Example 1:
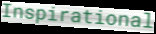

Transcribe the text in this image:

Inspirational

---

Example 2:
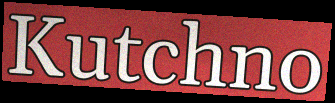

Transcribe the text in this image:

Kutchno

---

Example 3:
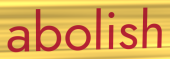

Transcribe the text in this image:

abolish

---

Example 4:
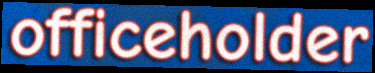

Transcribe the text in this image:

officeholder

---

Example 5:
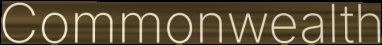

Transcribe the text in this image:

Commonwealth